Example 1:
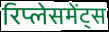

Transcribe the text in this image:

रिप्लेसमेंट्स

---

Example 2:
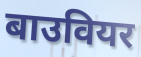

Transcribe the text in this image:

बाउवियर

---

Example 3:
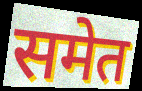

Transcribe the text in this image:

समेत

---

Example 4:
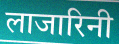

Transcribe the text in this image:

लाजारिनी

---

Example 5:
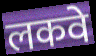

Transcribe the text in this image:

लकवे